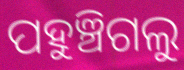
ପହୁଞ୍ଚିଗଲୁ